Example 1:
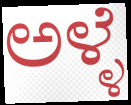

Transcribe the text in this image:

ಅಳ್ಳೆ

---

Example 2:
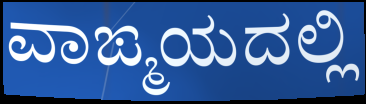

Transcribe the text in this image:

ವಾಙ್ಮಯದಲ್ಲಿ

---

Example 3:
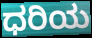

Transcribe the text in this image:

ಧರಿಯ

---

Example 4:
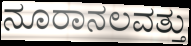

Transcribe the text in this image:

ನೂರಾನಲವತ್ತು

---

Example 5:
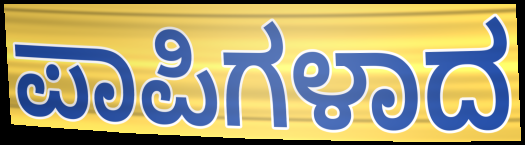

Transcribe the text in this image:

ಪಾಪಿಗಳಾದ